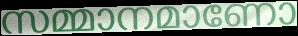
സമ്മാനമാണോ